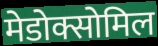
मेडोक्सोमिल